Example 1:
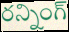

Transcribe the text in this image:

రన్నింగ్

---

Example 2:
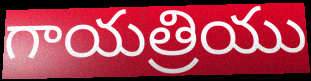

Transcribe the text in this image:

గాయత్రియు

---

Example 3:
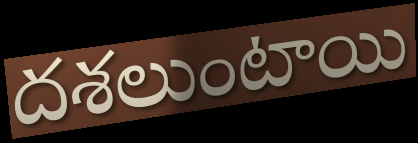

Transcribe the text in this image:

దశలుంటాయి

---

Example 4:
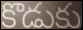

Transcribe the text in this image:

కొడుకు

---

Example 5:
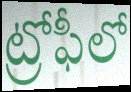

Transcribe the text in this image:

ట్రోఫీలో